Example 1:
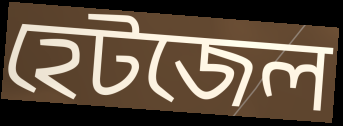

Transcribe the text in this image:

হেটজেল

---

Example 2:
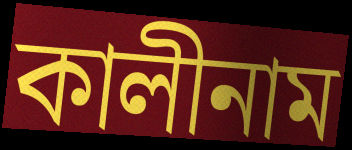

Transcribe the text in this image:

কালীনাম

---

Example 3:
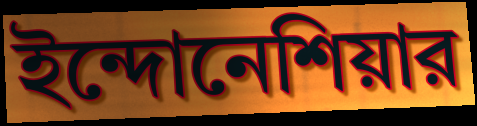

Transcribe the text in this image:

ইন্দোনেশিয়ার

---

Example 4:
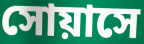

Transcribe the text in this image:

সোয়াসে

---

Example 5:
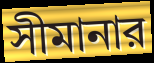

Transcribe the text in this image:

সীমানার